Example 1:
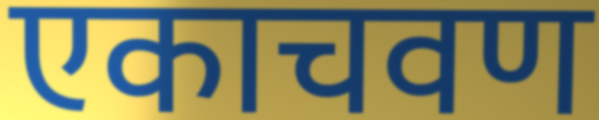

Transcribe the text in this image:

एकाचवण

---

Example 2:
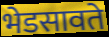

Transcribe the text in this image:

भेडसावते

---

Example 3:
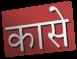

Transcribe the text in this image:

कासे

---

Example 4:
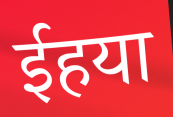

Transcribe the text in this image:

ईहया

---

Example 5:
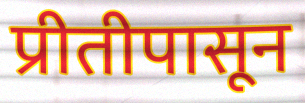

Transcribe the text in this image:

प्रीतीपासून